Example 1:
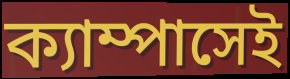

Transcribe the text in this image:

ক্যাম্পাসেই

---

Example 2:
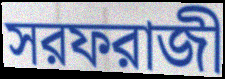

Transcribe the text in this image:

সরফরাজী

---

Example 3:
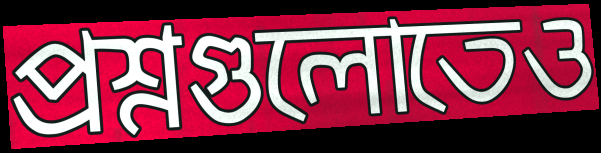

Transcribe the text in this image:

প্রশ্নগুলোতেও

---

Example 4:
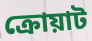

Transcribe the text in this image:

ক্রোয়াট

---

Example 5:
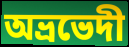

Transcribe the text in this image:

অভ্রভেদী